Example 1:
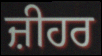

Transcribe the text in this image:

ਜ਼ੀਹਰ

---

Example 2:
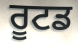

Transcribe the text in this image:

ਰੂਟਡ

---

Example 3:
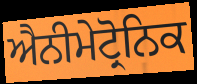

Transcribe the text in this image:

ਐਨੀਮੇਟ੍ਰੋਨਿਕ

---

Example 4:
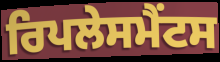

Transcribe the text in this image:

ਰਿਪਲੇਸਮੈਂਟਸ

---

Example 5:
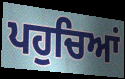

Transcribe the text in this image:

ਪਹੁਚਿਆਂ